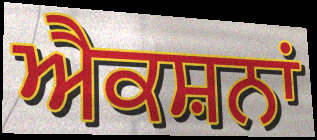
ਐਕਸ਼ਨਾਂ